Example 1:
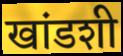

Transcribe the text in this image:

खांडशी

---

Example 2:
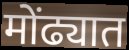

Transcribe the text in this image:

मोंढ्यात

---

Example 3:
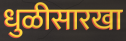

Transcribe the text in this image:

धुळीसारखा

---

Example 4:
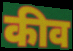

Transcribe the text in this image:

कीव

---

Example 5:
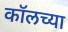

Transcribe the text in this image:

कॉलच्या